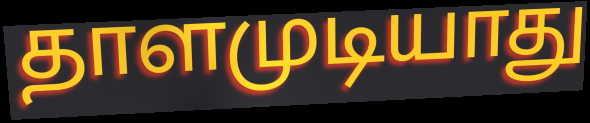
தாளமுடியாது